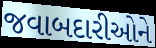
જવાબદારીઓને